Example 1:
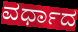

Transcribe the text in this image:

ವರ್ಧಾದ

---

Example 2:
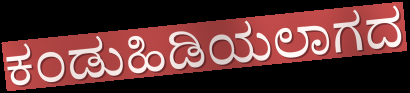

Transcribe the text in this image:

ಕಂಡುಹಿಡಿಯಲಾಗದ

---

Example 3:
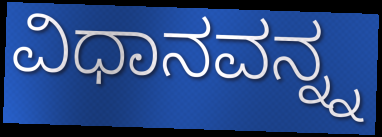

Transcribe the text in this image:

ವಿಧಾನವನ್ನ್ನ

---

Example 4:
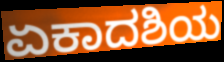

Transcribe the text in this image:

ಏಕಾದಶಿಯ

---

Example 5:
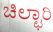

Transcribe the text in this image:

ಚಿಲ್ಟಾರಿ